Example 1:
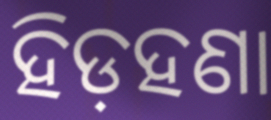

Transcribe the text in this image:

ହିଡ଼ହଣା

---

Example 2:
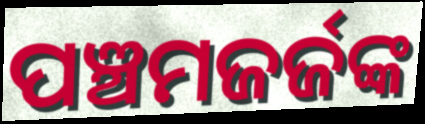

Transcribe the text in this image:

ପଞ୍ଚମଜର୍ଜଙ୍କ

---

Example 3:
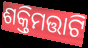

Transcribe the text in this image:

ଶକ୍ତିମତ୍ତାଟି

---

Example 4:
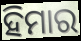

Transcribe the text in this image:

ହିମାର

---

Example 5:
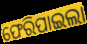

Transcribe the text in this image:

ଫେରିପାଇଲା